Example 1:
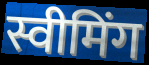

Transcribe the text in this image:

स्वीमिंग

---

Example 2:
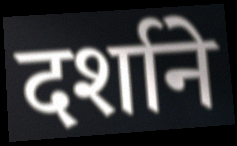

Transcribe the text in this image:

दर्शाने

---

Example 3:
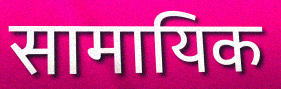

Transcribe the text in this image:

सामायिक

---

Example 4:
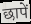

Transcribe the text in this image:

छापें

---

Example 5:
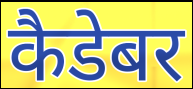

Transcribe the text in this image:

कैडेबर